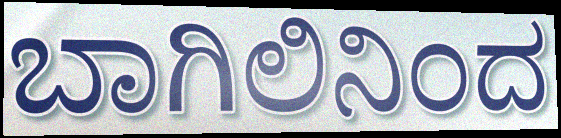
ಬಾಗಿಲಿನಿಂದ